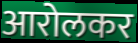
आरोलकर